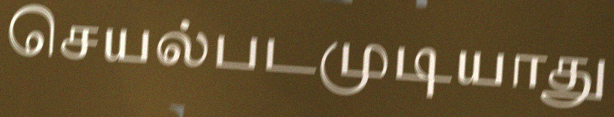
செயல்படமுடியாது